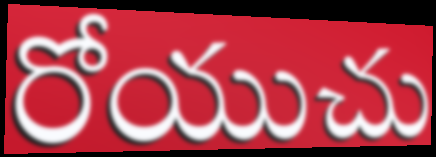
రోయుచు